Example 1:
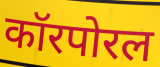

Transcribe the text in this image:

कॉरपोरल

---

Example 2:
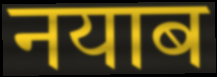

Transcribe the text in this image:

नयाब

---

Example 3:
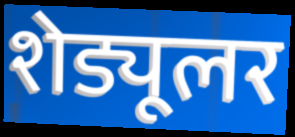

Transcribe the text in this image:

शेड्यूलर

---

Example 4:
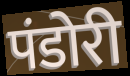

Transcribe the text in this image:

पंडोरी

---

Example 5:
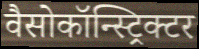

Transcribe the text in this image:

वैसोकॉन्स्ट्रिक्टर